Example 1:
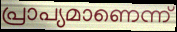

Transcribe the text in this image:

പ്രാപ്യമാണെന്ന്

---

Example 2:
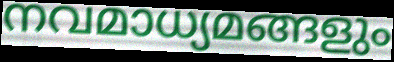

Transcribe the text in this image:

നവമാധ്യമങ്ങളും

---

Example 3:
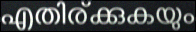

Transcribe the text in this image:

എതിര്ക്കുകയും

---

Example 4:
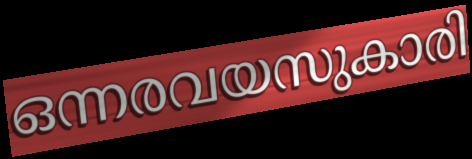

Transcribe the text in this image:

ഒന്നരവയസുകാരി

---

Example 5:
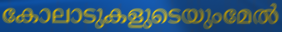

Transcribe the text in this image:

കോലാടുകളുടെയുംമേൽ